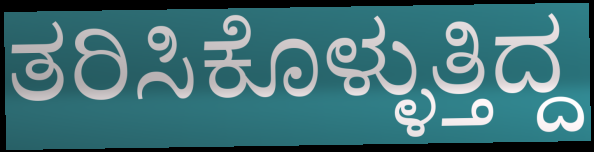
ತರಿಸಿಕೊಳ್ಳುತ್ತಿದ್ದ